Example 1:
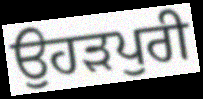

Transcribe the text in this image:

ਉਹੜਪੁਰੀ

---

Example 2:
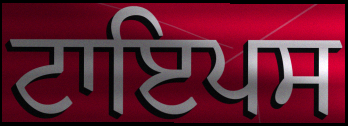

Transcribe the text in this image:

ਟਾਇਪਸ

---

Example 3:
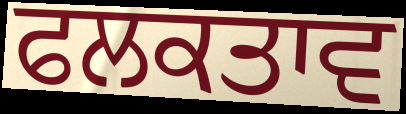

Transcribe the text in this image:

ਫਲਕਤਾਵ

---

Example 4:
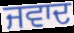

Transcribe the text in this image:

ਜਵਾਦ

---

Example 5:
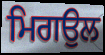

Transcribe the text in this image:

ਮਿਗਉਲ